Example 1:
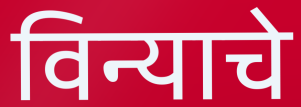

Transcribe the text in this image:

विन्याचे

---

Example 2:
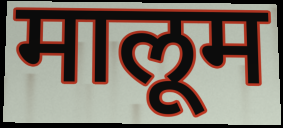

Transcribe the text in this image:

मालूम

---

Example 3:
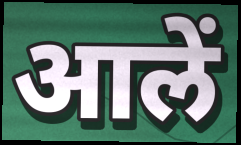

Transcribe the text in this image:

आलें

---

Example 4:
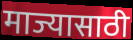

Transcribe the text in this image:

माज्यासाठी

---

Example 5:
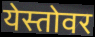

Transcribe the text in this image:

येस्तोवर